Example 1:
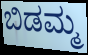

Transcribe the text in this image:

ಬಿಡಮ್ಮ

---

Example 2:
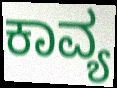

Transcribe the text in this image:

ಕಾವ್ಯ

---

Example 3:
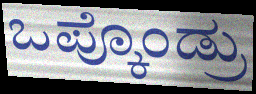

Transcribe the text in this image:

ಒಪ್ಕೊಂಡ್ರು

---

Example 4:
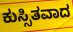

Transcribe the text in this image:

ಕುಸ್ಸಿತವಾದ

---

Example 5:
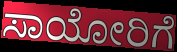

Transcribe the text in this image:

ಸಾಯೋರಿಗೆ